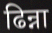
ढिन्ना